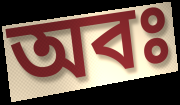
অবঃ